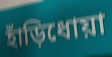
হাঁড়িধোয়া